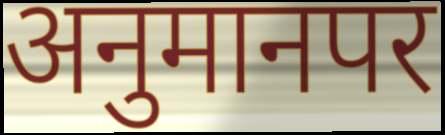
अनुमानपर